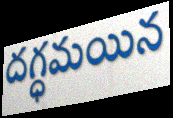
దగ్ధమయిన